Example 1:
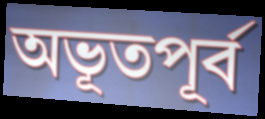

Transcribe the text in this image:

অভূতপূৰ্ব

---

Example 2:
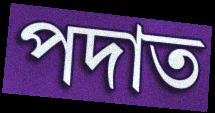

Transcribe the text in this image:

পদাত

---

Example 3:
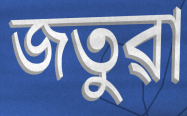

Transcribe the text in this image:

জতুৱা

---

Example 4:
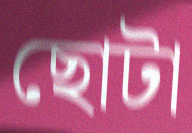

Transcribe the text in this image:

ছোটা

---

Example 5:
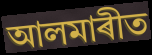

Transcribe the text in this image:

আলমাৰীত